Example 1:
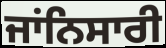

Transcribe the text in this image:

ਜਾਂਨਿਸਾਰੀ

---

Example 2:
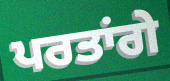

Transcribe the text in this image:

ਪਰਤਾਂਗੇ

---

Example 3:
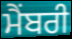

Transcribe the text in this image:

ਮੈਂਬਰੀ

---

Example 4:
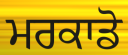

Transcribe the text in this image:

ਮਰਕਾਡੋ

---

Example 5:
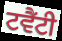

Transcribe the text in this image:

ਟਵੈਂਟੀ